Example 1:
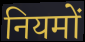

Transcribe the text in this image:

नियमों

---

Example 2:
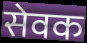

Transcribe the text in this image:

सेवक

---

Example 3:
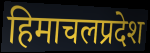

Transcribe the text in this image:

हिमाचलप्रदेश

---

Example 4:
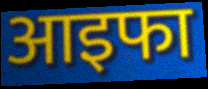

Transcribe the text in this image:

आइफा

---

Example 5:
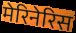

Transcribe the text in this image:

मेरिनेरिस